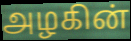
அழகின்